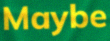
Maybe